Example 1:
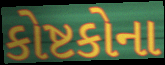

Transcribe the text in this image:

કોષ્ટકોના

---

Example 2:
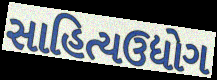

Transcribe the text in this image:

સાહિત્યઉદ્યોગ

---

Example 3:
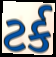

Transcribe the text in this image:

ટર્ક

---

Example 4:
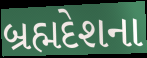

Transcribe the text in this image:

બ્રહ્મદેશના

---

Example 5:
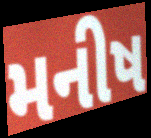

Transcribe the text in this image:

મનીષ